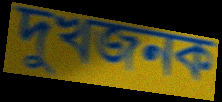
দুখজনক